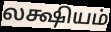
லக்ஷியம்